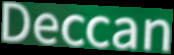
Deccan